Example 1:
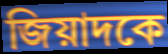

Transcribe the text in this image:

জিয়াদকে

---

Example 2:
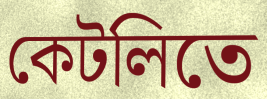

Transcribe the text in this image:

কেটলিতে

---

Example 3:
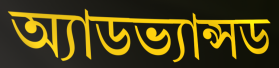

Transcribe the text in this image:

অ্যাডভ্যান্সড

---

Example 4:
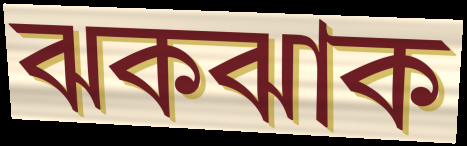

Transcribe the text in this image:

ঝকঝাক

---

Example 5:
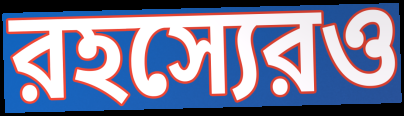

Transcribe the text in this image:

রহস্যেরও